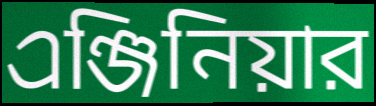
এঞ্জিনিয়ার